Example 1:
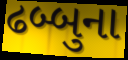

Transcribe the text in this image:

ઢબ્બુના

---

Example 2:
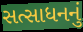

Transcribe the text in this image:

સત્સાધનનું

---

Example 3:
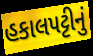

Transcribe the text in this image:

હકાલપટ્ટીનું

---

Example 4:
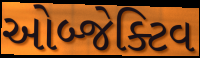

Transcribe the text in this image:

ઓબ્જેક્ટિવ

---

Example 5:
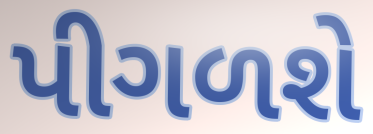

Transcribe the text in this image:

પીગળશે